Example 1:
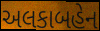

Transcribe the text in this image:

અલકાબહેન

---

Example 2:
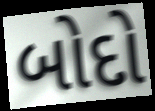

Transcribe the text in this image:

બોદો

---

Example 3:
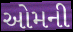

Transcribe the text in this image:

ઓમની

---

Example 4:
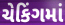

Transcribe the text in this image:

ચેકિંગમાં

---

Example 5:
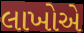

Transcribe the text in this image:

લાખોએ